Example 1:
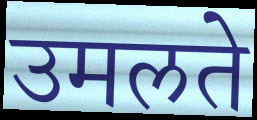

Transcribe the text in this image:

उमलते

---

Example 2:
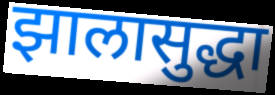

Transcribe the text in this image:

झालासुद्धा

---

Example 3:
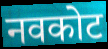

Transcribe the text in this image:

नवकोट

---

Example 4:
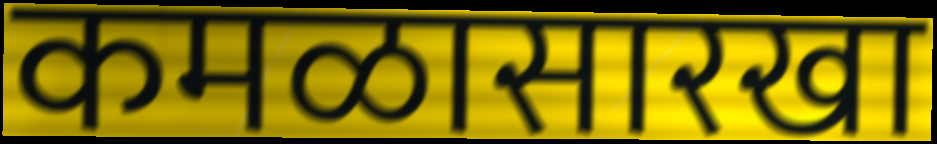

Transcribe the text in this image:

कमळासारखा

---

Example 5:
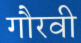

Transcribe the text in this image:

गौरवी